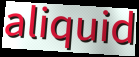
aliquid